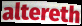
altereth